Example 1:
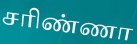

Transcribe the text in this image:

சரிண்ணா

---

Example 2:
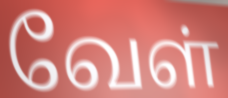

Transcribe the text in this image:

வேள்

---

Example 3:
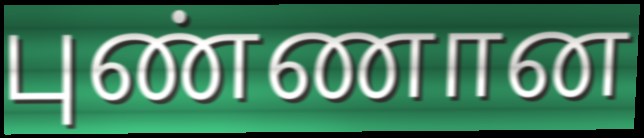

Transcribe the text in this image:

புண்ணான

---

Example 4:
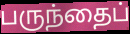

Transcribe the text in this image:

பருந்தைப்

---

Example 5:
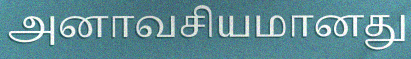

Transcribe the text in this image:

அனாவசியமானது